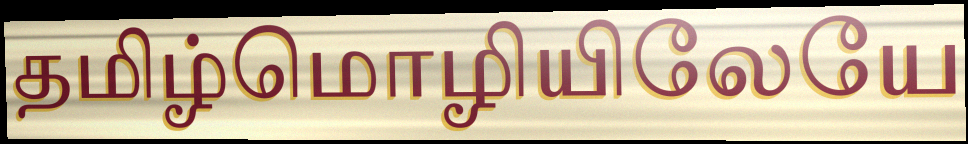
தமிழ்மொழியிலேயே